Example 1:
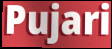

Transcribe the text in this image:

Pujari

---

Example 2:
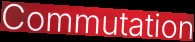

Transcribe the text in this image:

Commutation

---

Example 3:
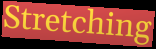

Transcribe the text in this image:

Stretching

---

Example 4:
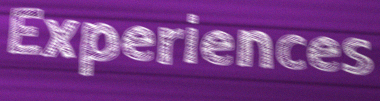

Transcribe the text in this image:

Experiences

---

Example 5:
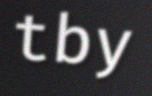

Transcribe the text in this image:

tby